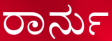
ರಾರ್ನು